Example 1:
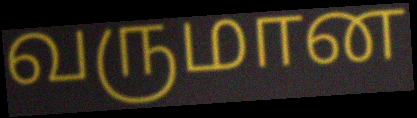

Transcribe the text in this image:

வருமான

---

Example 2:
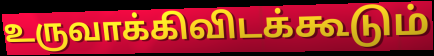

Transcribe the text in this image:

உருவாக்கிவிடக்கூடும்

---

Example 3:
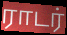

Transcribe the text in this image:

ராடர்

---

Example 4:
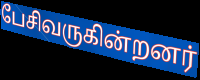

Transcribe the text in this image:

பேசிவருகின்றனர்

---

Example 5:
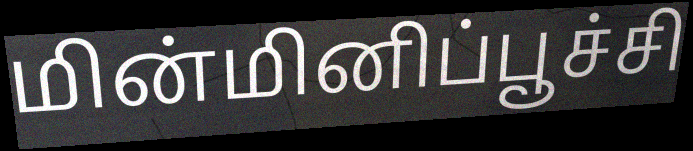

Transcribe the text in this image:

மின்மினிப்பூச்சி